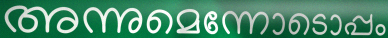
അന്നുമെന്നോടൊപ്പം